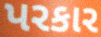
પરકાર